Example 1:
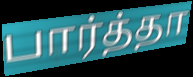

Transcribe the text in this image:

பார்த்தா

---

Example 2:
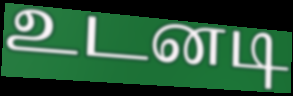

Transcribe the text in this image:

உடனடி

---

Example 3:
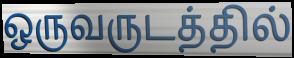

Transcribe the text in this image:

ஒருவருடத்தில்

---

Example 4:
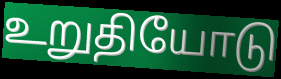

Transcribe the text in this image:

உறுதியோடு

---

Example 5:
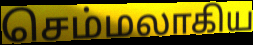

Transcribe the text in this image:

செம்மலாகிய